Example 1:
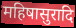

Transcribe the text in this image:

महिषासुरादि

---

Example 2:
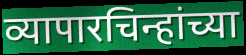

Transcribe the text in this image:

व्यापारचिन्हांच्या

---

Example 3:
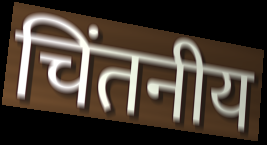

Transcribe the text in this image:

चिंतनीय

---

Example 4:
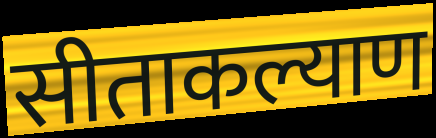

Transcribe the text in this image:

सीताकल्याण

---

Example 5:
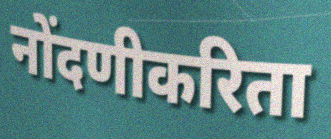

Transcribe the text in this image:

नोंदणीकरिता